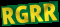
RGRR